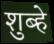
शुब्हे